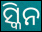
ସ୍କିନ